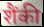
शैंकी